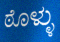
ಠೊಳ್ಳು